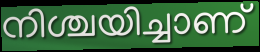
നിശ്ചയിച്ചാണ്